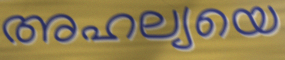
അഹല്യയെ